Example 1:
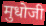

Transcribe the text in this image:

मुधोजी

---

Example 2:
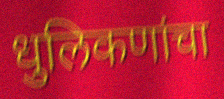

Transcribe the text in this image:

धुलिकणांचा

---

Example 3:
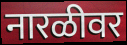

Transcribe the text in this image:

नारळीवर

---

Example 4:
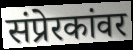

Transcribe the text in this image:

संप्रेरकांवर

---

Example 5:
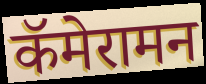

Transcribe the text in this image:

कॅमेरामन